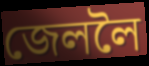
জেললৈ